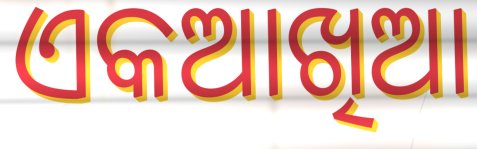
ଏକଆଖିଆ